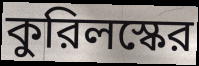
কুরিলস্কের